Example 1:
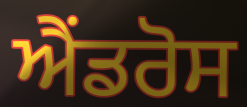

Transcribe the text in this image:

ਐਂਡਰੋਸ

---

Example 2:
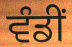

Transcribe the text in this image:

ਵੰਡੀਂ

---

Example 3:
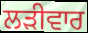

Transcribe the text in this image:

ਲੜੀਵਾਰ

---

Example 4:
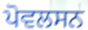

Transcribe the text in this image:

ਪੋਵਲਸਨ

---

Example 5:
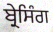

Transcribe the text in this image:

ਬ੍ਰੇਸਿੰਗ